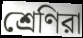
শ্রেণিরা